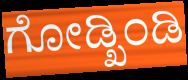
ಗೋಡ್ಖಿಂಡಿ